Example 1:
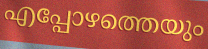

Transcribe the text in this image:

എപ്പോഴത്തെയും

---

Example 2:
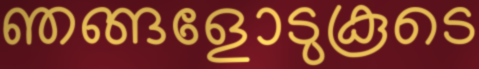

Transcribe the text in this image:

ഞങ്ങളോടുകൂടെ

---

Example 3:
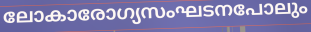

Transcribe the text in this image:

ലോകാരോഗ്യസംഘടനപോലും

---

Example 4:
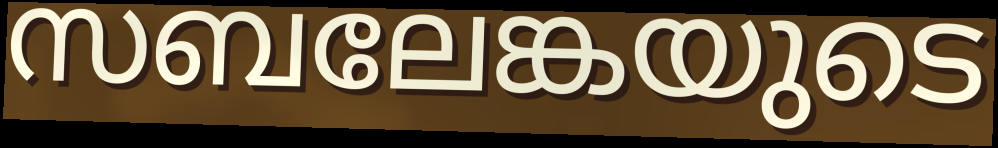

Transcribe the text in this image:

സബലേങ്കയുടെ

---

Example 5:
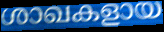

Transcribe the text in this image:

ശാഖകളായ